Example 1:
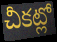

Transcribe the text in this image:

చీకట్లో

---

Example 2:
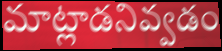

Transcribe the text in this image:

మాట్లాడనివ్వడం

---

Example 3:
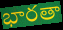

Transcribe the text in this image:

భారతా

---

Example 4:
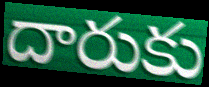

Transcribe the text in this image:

దారుకు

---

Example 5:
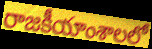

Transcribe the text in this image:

రాజకీయాంశాలలో